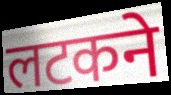
लटकने